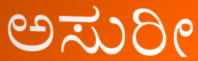
ಅಸುರೀ